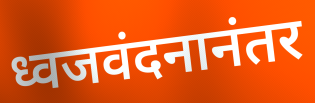
ध्वजवंदनानंतर